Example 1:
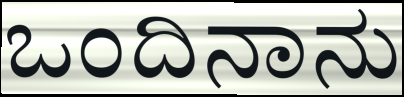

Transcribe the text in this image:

ಒಂದಿನಾನು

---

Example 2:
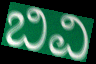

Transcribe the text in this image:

ಬಿವಿ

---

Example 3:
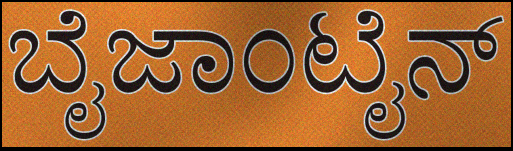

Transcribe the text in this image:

ಬೈಜಾಂಟೈನ್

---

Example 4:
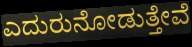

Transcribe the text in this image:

ಎದುರುನೋಡುತ್ತೇವೆ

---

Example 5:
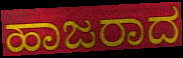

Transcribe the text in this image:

ಹಾಜರಾದ